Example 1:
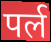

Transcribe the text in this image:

पर्ल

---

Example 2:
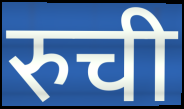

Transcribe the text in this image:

रुची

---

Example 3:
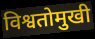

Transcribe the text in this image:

विश्वतोमुखी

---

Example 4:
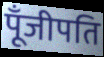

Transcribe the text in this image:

पूँजीपति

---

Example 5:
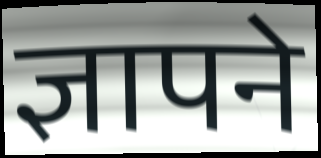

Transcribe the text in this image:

ज्ञापने